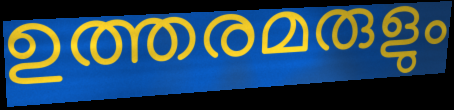
ഉത്തരമരുളും